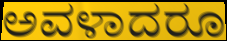
ಅವಳಾದರೂ